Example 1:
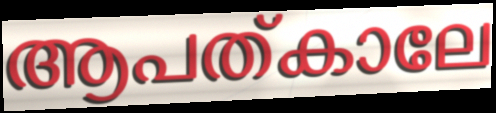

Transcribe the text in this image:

ആപത്കാലേ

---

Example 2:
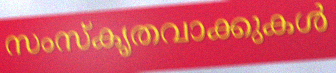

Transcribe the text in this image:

സംസ്കൃതവാക്കുകൾ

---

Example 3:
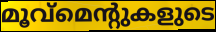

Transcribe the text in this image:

മൂവ്മെന്റുകളുടെ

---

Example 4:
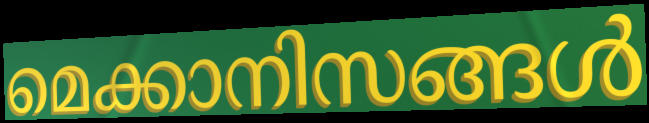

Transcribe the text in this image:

മെക്കാനിസങ്ങൾ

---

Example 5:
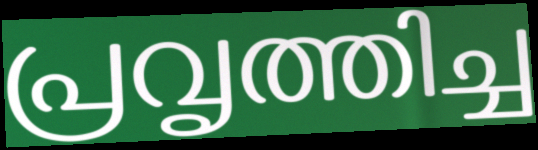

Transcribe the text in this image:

പ്രവൃത്തിച്ച